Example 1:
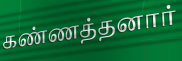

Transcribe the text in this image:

கண்ணத்தனார்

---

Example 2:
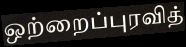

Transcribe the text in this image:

ஒற்றைப்புரவித்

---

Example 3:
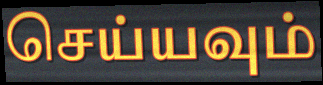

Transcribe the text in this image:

செய்யவும்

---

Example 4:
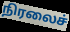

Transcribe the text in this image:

நிரலைச்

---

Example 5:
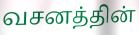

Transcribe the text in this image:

வசனத்தின்